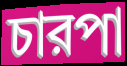
চারপা